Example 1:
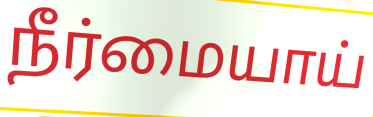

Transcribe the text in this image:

நீர்மையாய்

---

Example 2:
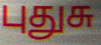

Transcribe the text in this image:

புதுசு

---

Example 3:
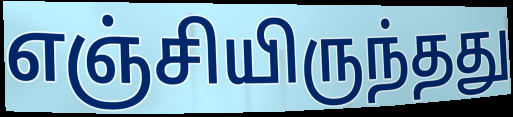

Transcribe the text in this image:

எஞ்சியிருந்தது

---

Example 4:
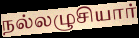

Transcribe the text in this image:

நல்லழுசியார்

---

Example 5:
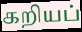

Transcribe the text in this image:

கறியப்